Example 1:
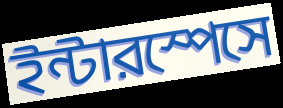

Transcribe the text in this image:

ইন্টারস্পেসে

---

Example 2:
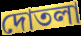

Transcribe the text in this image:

দোতলা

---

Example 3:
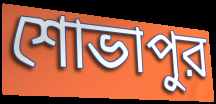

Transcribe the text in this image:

শোভাপুর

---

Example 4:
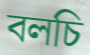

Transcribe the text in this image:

বলচি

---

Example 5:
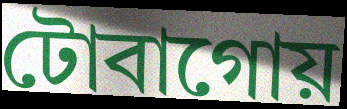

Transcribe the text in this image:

টোবাগোয়